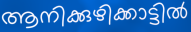
ആനിക്കുഴിക്കാട്ടിൽ